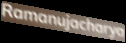
Ramanujacharya